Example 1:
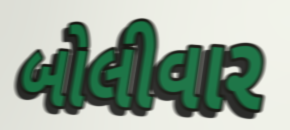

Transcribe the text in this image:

બોલીવાર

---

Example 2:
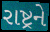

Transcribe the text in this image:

રાષ્ટ્રને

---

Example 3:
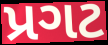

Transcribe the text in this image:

પ્રગટ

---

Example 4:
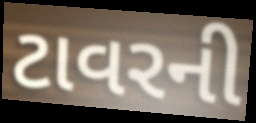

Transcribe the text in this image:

ટાવરની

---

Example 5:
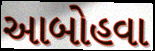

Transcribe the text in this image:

આબોહવા